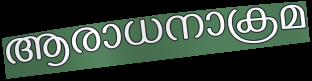
ആരാധനാക്രമ